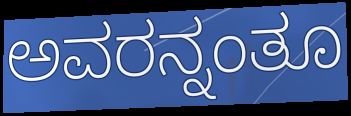
ಅವರನ್ನಂತೂ